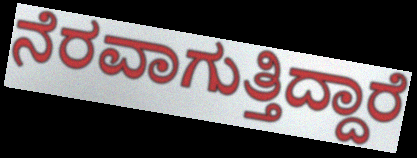
ನೆರವಾಗುತ್ತಿದ್ದಾರೆ